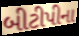
બીટીપીના